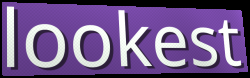
lookest